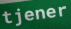
tjener